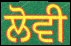
ਲੋਵੀ